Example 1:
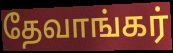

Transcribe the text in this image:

தேவாங்கர்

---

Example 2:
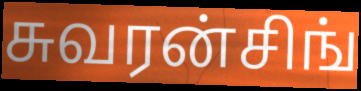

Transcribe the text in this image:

சுவரன்சிங்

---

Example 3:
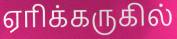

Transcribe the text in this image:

ஏரிக்கருகில்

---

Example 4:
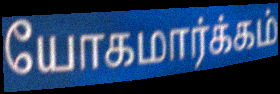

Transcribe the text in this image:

யோகமார்க்கம்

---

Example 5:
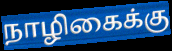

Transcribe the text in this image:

நாழிகைக்கு